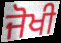
ਜੋਖੀ